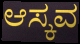
ಆಸ್ಕವ